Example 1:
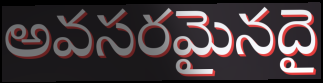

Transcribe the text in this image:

అవసరమైనదై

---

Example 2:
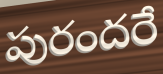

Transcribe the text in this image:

పురందరే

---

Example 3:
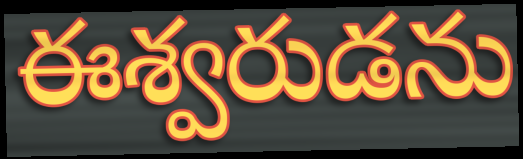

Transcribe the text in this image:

ఈశ్వరుడను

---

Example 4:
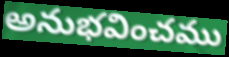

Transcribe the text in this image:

అనుభవించము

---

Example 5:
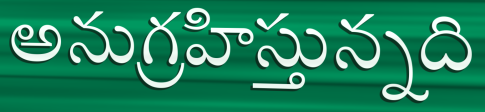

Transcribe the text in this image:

అనుగ్రహిస్తున్నది